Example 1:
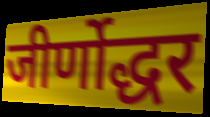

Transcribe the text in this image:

जीर्णोद्धर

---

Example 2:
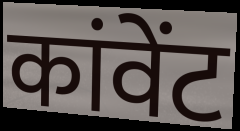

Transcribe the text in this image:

कांवेंट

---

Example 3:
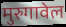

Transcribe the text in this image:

मुरुगावेल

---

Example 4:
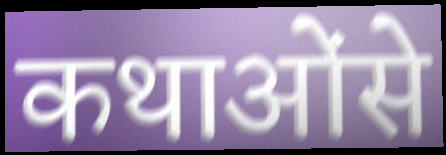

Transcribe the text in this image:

कथाओंसे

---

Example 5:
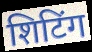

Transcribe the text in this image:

शिटिंग